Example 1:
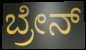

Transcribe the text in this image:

ಬ್ರೇನ್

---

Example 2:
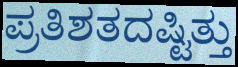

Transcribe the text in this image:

ಪ್ರತಿಶತದಷ್ಟಿತ್ತು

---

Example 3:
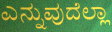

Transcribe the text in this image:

ಎನ್ನುವುದೆಲ್ಲಾ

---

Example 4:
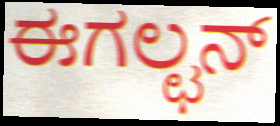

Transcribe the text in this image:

ಈಗಲ್ಟನ್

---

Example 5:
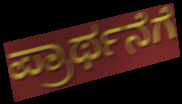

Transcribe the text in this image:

ಪ್ರಾರ್ಥನೆಗೆ